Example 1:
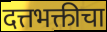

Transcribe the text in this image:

दत्तभक्तीचा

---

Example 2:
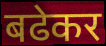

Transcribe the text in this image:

बढेकर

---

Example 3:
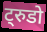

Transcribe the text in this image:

ट्रुडो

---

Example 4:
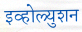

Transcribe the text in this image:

इव्होल्युशन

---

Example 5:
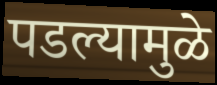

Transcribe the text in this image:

पडल्यामुळे